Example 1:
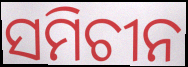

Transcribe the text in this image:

ସମିଚୀନ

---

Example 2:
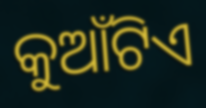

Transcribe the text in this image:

କୁଆଁଟିଏ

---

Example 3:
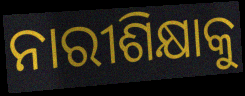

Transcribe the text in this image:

ନାରୀଶିକ୍ଷାକୁ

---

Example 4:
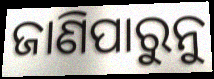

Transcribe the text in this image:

ଜାଣିପାରୁନୁ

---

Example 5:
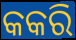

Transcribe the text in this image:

କକରି